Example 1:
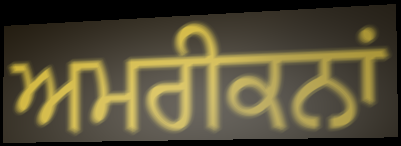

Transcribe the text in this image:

ਅਮਰੀਕਨਾਂ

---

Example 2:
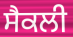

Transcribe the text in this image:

ਸੈਕਲੀ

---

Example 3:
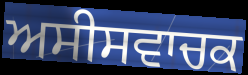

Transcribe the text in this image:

ਅਸੀਸਵਾਚਕ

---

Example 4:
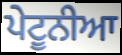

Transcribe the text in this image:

ਪੇਟੂਨੀਆ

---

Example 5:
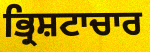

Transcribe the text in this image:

ਭ੍ਰਿਸ਼ਟਾਚਾਰ